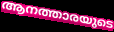
ആനത്താരയുടെ